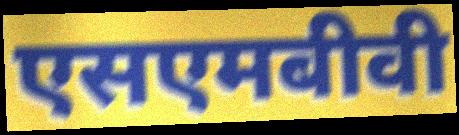
एसएमबीवी